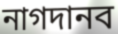
নাগদানব